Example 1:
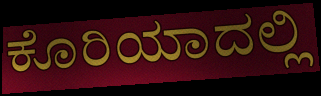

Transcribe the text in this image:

ಕೊರಿಯಾದಲ್ಲಿ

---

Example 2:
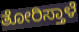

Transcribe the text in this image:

ತೋರಿಸ್ತಾಳೆ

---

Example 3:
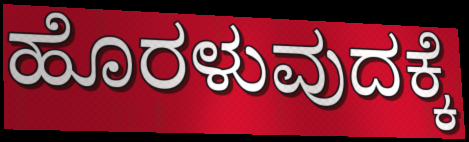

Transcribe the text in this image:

ಹೊರಳುವುದಕ್ಕೆ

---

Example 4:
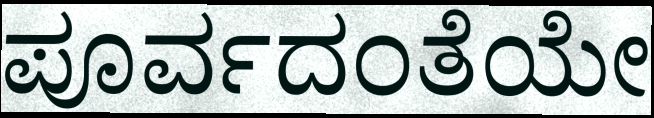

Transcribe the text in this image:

ಪೂರ್ವದಂತೆಯೇ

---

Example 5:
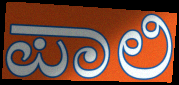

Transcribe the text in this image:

ಪಾಲಿ